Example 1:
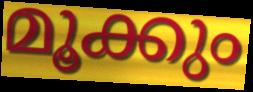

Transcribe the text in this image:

മൂക്കും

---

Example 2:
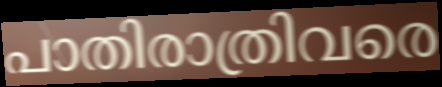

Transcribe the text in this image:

പാതിരാത്രിവരെ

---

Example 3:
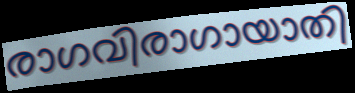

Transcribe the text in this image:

രാഗവിരാഗായാതി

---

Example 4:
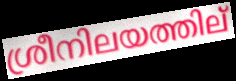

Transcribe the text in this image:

ശ്രീനിലയത്തില്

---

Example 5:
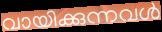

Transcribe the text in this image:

വായിക്കുന്നവൾ